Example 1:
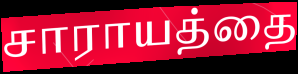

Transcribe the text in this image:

சாராயத்தை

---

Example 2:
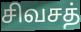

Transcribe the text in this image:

சிவசத்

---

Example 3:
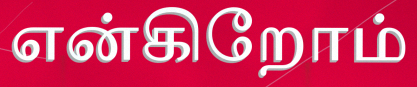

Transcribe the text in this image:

என்கிறோம்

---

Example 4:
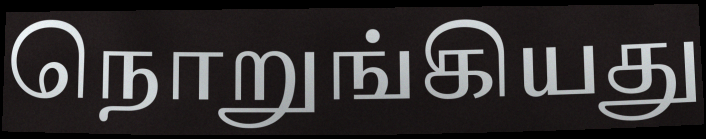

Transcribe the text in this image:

நொறுங்கியது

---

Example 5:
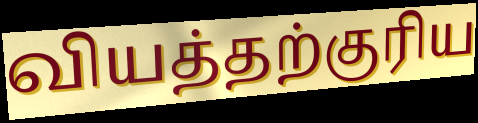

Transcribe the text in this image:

வியத்தற்குரிய